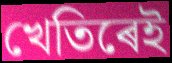
খেতিৰেই